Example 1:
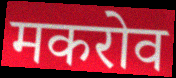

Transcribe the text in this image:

मकरोव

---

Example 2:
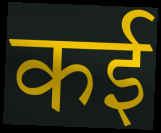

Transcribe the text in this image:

कई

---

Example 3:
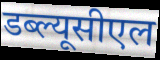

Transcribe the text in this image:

डब्ल्यूसीएल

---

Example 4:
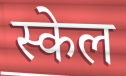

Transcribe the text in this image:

स्केल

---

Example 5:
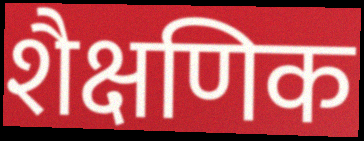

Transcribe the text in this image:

शैक्षणिक